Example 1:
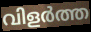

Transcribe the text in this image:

വിളർത്ത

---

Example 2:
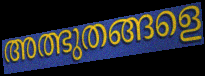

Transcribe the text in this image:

അത്ഭുതങ്ങളെ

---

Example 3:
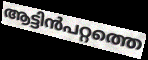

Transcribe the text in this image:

ആട്ടിൻപറ്റത്തെ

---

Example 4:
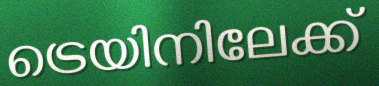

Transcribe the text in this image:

ട്രെയിനിലേക്ക്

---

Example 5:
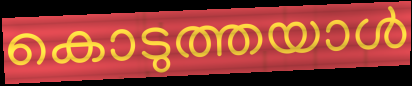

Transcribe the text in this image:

കൊടുത്തയാൾ